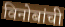
विनोबांची